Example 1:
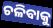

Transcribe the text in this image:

ଚଳିବାକୁ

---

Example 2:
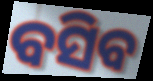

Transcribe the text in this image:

ବସିବ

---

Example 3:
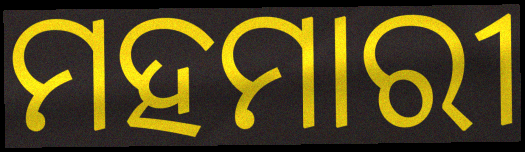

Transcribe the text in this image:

ମହମାରୀ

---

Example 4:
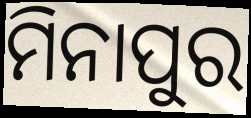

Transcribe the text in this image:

ମିନାପୁର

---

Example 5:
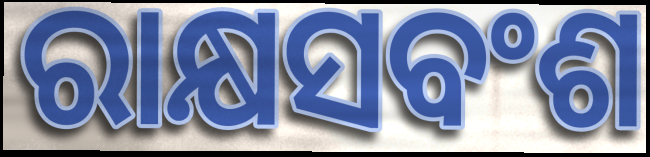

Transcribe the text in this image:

ରାକ୍ଷସବଂଶ